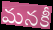
మనకీ